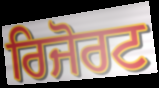
ਰਿਜੋਰਟ